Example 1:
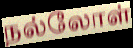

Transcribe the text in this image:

நல்லோள்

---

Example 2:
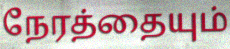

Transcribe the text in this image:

நேரத்தையும்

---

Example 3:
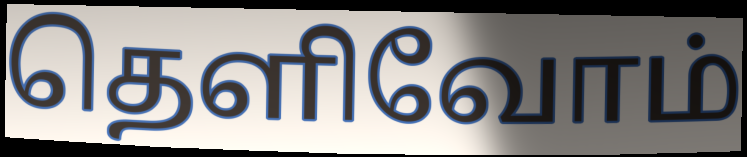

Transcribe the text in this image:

தெளிவோம்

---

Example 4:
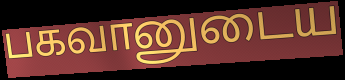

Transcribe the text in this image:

பகவானுடைய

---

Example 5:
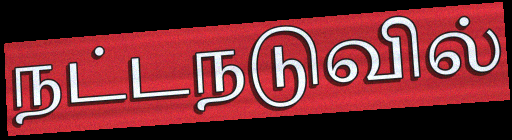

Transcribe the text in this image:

நட்டநடுவில்